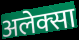
अलेक्‍सा